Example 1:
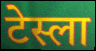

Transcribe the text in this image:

टेस्ला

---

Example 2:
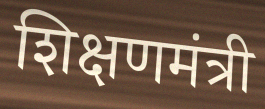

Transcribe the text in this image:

शिक्षणमंत्री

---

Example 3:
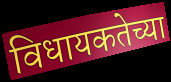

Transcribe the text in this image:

विधायकतेच्या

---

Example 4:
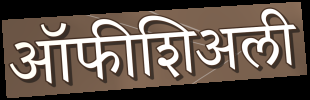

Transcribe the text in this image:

ऑफीशिअली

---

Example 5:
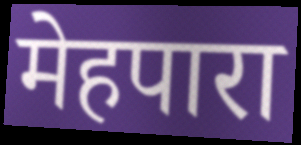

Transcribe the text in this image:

मेहपारा